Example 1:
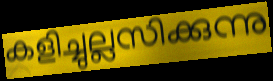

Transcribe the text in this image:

കളിച്ചുല്ലസിക്കുന്നു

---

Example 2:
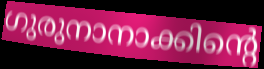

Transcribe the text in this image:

ഗുരുനാനാക്കിന്റെ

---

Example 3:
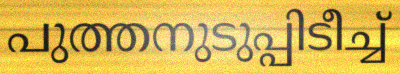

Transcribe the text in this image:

പുത്തനുടുപ്പിടീച്ച്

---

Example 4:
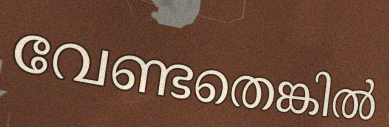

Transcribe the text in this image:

വേണ്ടതെങ്കിൽ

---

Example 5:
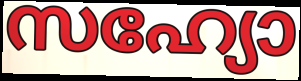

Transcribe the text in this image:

സഹ്യോ